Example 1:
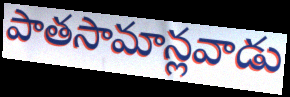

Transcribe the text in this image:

పాతసామాన్లవాడు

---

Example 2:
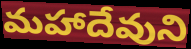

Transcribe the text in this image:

మహాదేవుని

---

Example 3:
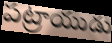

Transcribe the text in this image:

పట్రాయుడు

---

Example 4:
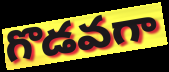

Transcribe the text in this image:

గొడవగా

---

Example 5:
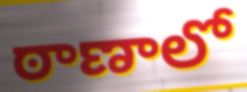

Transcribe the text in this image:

ఠాణాలో